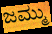
ಜಮ್ಮು